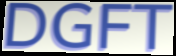
DGFT